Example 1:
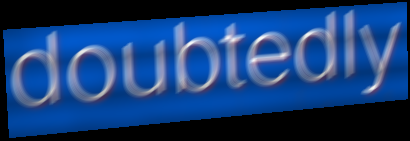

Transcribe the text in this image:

doubtedly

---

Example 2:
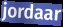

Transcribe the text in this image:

jordaar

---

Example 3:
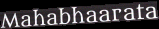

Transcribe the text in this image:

Mahabhaarata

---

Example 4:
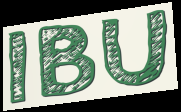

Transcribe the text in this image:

IBU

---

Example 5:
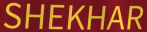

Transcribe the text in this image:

SHEKHAR